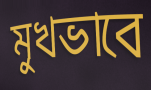
মুখভাবে